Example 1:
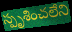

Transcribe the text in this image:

స్పృశించలేని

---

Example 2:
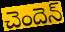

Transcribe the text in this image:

చెందెన్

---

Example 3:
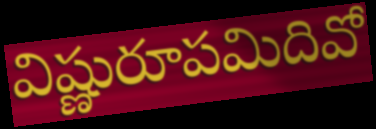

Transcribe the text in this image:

విష్ణురూపమిదివో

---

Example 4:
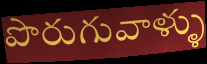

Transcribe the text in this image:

పొరుగువాళ్ళు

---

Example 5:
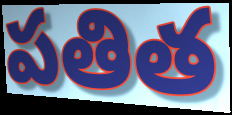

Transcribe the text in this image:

పతిత